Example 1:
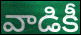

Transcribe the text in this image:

వాడికీ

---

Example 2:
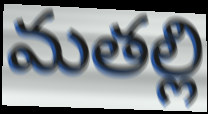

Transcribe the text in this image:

మతల్లి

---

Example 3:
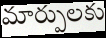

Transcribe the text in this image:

మార్పులకు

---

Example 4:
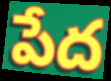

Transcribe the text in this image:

పేద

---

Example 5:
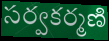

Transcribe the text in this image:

సర్వకర్మణి